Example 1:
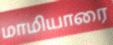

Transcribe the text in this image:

மாமியாரை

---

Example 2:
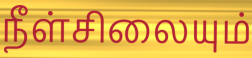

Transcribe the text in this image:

நீள்சிலையும்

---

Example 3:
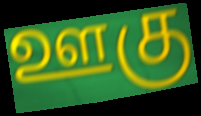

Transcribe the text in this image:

ஊகு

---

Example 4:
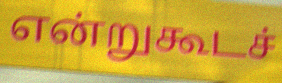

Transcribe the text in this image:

என்றுகூடச்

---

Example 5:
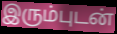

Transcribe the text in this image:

இரும்புடன்